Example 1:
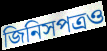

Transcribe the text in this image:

জিনিসপত্রও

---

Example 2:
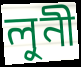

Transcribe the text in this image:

লুনী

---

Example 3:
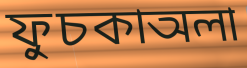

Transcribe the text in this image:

ফুচকাঅলা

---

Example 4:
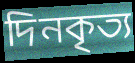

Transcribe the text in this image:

দিনকৃত্য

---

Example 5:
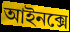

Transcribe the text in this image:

আইনক্সে